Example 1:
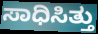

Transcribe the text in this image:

ಸಾಧಿಸಿತ್ತು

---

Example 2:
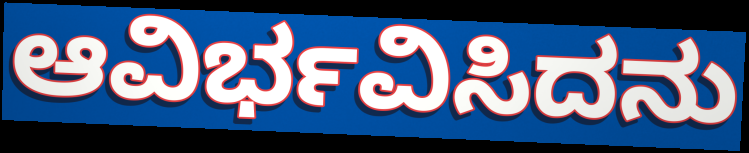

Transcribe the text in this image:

ಆವಿರ್ಭವಿಸಿದನು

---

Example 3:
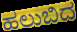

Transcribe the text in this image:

ಹಲುಬಿದ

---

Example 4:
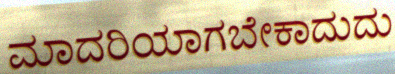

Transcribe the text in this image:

ಮಾದರಿಯಾಗಬೇಕಾದುದು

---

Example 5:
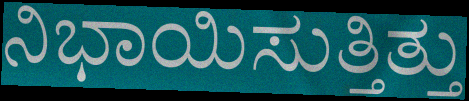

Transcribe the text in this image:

ನಿಭಾಯಿಸುತ್ತಿತ್ತು